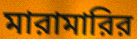
মারামারির